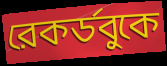
রেকর্ডবুকে